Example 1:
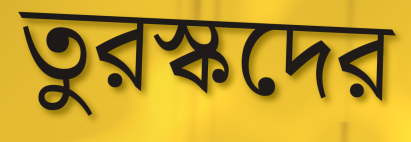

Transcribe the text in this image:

তুরস্কদের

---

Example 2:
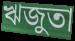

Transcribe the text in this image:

ঋজুতা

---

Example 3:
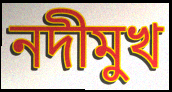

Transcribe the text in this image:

নদীমুখ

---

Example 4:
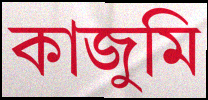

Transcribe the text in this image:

কাজুমি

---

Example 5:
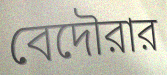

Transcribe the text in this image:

বেদৌরার